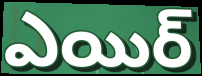
ఎయిర్